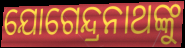
ଯୋଗେନ୍ଦ୍ରନାଥଙ୍କୁ